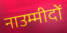
नाउम्मीदों